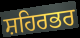
ਸ਼ਹਿਰਭਰ